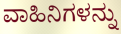
ವಾಹಿನಿಗಳನ್ನು